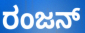
ರಂಜನ್